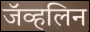
जॅव्हलिन